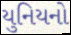
યુનિયનો